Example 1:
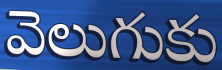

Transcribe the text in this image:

వెలుగుకు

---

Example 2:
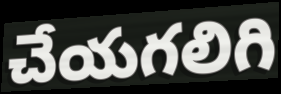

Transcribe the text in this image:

చేయగలిగి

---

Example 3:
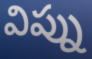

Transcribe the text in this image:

విప్ను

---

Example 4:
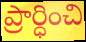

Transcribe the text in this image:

ప్రార్ధించి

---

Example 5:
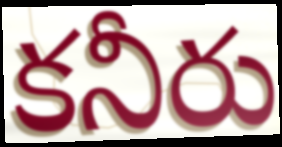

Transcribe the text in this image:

కనీరు